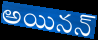
అయినన్